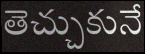
తెచ్చుకునే